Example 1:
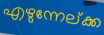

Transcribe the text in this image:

എഴുന്നേല്ക്ക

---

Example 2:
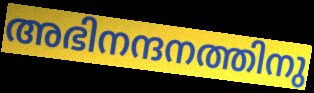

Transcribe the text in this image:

അഭിനന്ദനത്തിനു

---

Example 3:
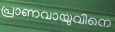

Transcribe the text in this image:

പ്രാണവായുവിനെ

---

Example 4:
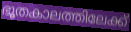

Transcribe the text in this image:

ഭൂതകാലത്തിലേക്ക്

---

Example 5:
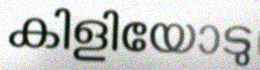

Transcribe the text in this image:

കിളിയോടു